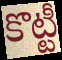
కొట్టీ